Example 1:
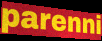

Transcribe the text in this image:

parenni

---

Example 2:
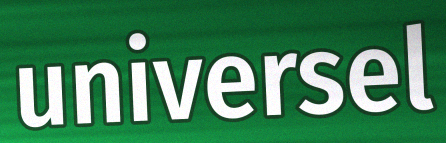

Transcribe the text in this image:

universel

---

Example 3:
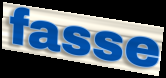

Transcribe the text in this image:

fasse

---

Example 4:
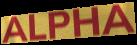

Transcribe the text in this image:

ALPHA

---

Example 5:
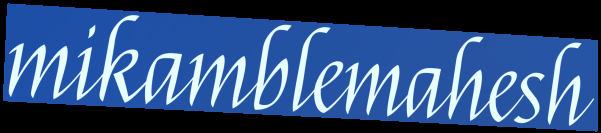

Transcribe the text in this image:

mikamblemahesh